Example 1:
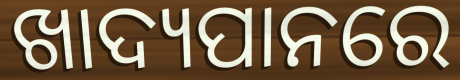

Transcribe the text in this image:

ଖାଦ୍ୟପାନରେ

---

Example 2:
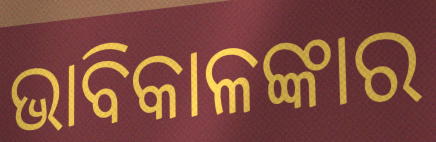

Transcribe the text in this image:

ଭାବିକାଳଙ୍କାର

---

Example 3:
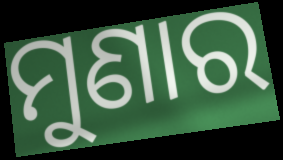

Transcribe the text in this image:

ମୁଣାର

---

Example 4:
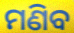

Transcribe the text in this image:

ମଣିବ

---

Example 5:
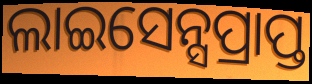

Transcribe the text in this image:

ଲାଇସେନ୍ସପ୍ରାପ୍ତ